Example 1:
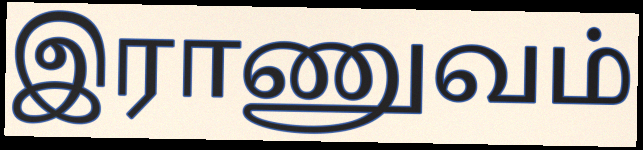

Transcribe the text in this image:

இராணுவம்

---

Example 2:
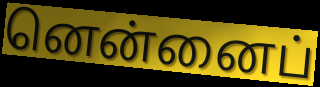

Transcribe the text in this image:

னென்னைப்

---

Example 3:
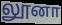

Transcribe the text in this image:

லூனா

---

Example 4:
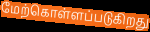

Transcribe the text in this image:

மேற்கொள்ளப்படுகிறது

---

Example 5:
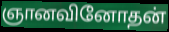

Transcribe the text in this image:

ஞானவினோதன்